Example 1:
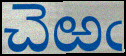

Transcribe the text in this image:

చెఱఁ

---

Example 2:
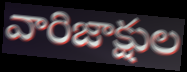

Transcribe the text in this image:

వారిజాక్షుల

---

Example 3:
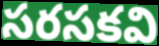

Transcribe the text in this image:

సరసకవి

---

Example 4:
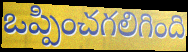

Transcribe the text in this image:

ఒప్పించగలిగింది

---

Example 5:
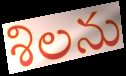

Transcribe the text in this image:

శిలను